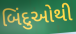
બિંદુઓથી